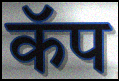
कॅप